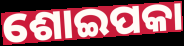
ଶୋଇପକା